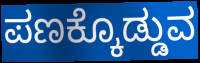
ಪಣಕ್ಕೊಡ್ಡುವ